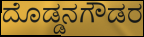
ದೊಡ್ಡನಗೌಡರ